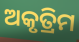
ଅକୃତ୍ରିମ